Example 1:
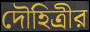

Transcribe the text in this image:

দৌহিত্রীর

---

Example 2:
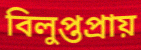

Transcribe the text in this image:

বিলুপ্তপ্রায়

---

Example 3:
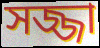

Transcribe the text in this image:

সজ্জা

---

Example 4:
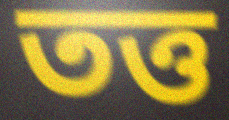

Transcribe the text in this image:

তত্ত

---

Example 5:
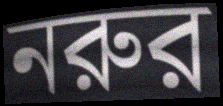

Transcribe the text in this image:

নরুর